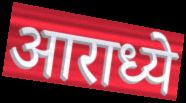
आराध्ये